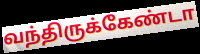
வந்திருக்கேண்டா